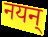
नयन्